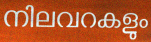
നിലവറകളും